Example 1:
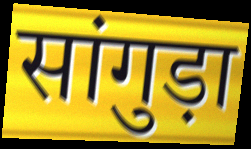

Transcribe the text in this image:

सांगुड़ा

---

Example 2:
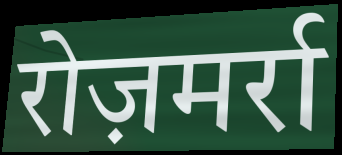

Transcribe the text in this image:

रोज़मर्रा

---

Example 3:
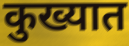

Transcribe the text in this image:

कुख्यात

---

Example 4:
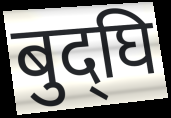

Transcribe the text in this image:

बुद्घि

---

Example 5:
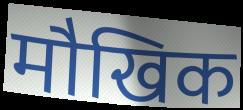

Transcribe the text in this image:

मौखिक